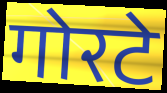
गोरटे